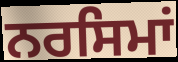
ਨਰਸਿਮਾਂ